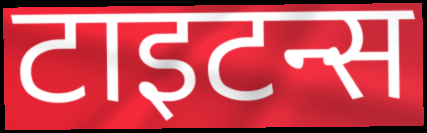
टाइटन्स